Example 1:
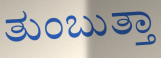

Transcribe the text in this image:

ತುಂಬುತ್ತಾ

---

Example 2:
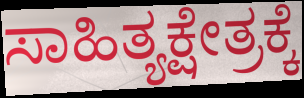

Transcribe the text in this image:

ಸಾಹಿತ್ಯಕ್ಷೇತ್ರಕ್ಕೆ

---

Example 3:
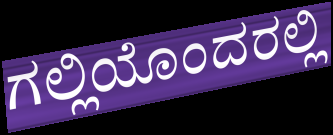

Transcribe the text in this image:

ಗಲ್ಲಿಯೊಂದರಲ್ಲಿ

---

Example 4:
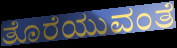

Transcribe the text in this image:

ತೊರೆಯುವಂತೆ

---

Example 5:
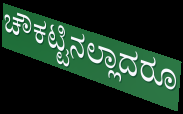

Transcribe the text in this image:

ಚೌಕಟ್ಟಿನಲ್ಲಾದರೂ